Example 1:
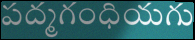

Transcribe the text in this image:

పద్మగంధియగు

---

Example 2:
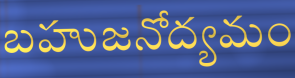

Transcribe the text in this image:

బహుజనోద్యమం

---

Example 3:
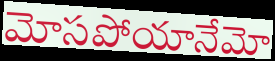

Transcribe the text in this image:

మోసపోయానేమో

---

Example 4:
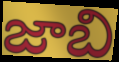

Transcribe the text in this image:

జాబి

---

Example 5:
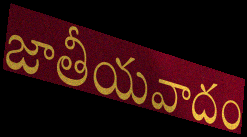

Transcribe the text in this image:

జాతీయవాదం